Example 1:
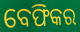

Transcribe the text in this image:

ବେଫିକର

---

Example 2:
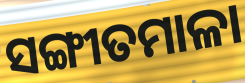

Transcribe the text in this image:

ସଙ୍ଗୀତମାଳା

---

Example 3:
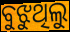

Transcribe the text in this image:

ବୁଝୁଥିଲୁ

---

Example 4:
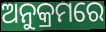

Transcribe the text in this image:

ଅନୁକ୍ରମରେ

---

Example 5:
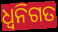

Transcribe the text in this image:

ଧ୍ୱନିଗତ